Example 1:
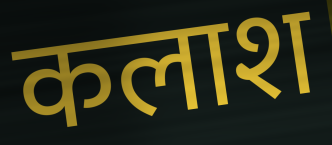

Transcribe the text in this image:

कलाश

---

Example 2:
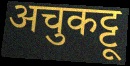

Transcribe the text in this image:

अचुकट्टू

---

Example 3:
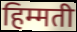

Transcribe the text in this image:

हिम्मती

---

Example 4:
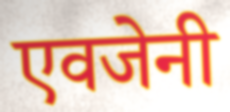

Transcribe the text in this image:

एवजेनी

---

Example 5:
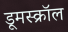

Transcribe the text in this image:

डूमस्क्रॉल